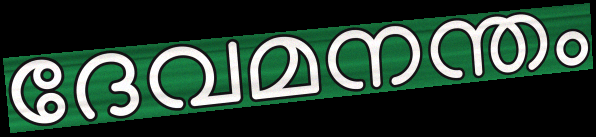
ദേവമനന്തം